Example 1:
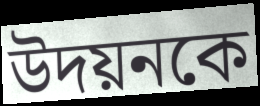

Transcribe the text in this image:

উদয়নকে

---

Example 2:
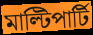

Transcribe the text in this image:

মাল্টিপার্টি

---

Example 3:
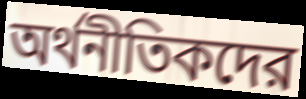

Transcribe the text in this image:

অর্থনীতিকদের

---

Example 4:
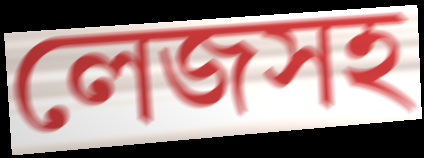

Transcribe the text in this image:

লেজসহ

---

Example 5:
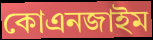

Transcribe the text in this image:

কোএনজাইম